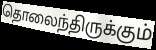
தொலைந்திருக்கும்